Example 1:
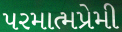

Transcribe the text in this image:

પરમાત્મપ્રેમી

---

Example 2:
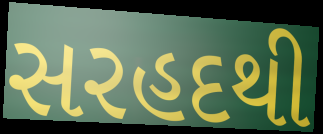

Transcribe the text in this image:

સરહદથી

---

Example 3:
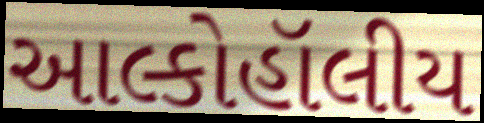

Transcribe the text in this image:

આલ્કોહૉલીય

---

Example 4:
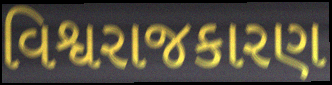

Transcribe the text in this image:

વિશ્વરાજકારણ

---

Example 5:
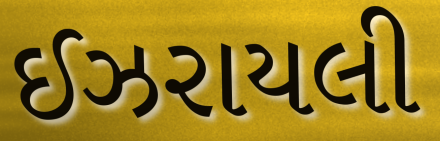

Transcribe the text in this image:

ઈઝરાયલી